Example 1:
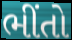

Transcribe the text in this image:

ભીંતો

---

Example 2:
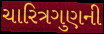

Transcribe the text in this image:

ચારિત્રગુણની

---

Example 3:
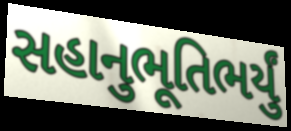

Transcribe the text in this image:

સહાનુભૂતિભર્યું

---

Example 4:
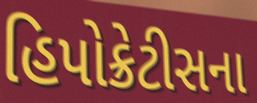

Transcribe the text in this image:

હિપોક્રેટીસના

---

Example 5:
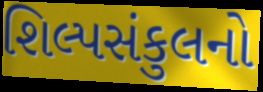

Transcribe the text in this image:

શિલ્પસંકુલનો